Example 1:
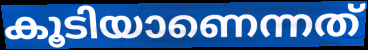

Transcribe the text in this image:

കൂടിയാണെന്നത്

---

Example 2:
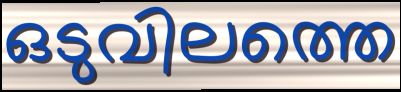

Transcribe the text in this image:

ഒടുവിലത്തെ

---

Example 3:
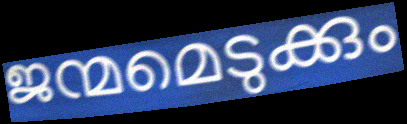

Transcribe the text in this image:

ജന്മമെടുക്കും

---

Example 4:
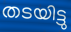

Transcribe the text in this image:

തടയിട്ടു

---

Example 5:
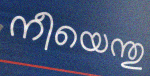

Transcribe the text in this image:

നീയെന്തു